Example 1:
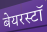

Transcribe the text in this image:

बेयरस्टॉ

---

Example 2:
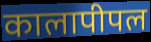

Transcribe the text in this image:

कालापीपल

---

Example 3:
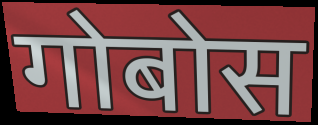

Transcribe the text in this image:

गोबोस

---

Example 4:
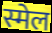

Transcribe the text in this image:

स्‍मेल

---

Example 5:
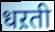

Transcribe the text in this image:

धऱती